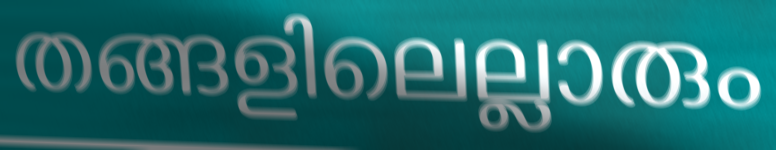
തങ്ങളിലെല്ലാരും